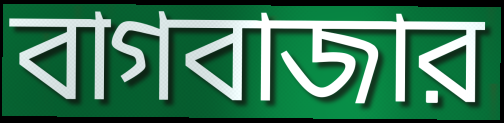
বাগবাজার